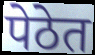
पेठेत